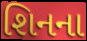
શિનના